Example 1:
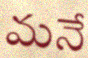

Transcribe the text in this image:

మనే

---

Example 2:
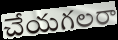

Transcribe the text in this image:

చేయగలరా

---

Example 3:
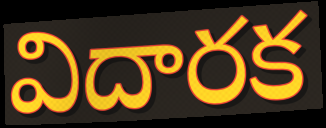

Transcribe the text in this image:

విదారక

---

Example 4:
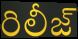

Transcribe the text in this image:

రిలీజ్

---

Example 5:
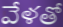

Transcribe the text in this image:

వేళతో